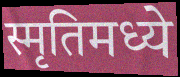
स्मृतिमध्ये